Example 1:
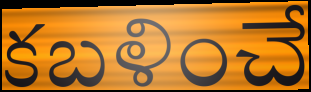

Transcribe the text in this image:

కబళించే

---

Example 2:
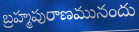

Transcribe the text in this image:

బ్రహ్మపురాణమునందు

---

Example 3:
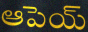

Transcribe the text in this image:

ఆపెయ్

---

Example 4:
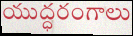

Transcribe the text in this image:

యుద్ధరంగాలు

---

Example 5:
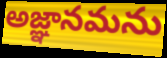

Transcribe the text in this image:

అజ్ఞానమను